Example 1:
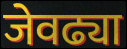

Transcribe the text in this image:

जेवढ्या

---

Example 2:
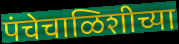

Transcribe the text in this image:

पंचेचाळिशीच्या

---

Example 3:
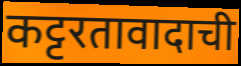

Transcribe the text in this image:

कट्टरतावादाची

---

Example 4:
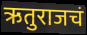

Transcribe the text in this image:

ऋतुराजचं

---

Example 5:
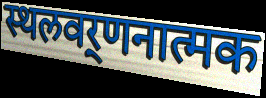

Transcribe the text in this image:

स्थलवर्णनात्मक